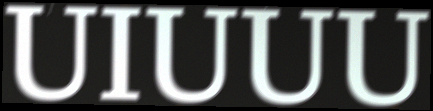
UIUUU